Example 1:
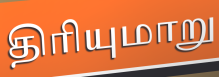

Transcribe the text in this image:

திரியுமாறு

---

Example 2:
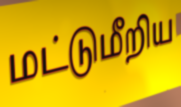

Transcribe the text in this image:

மட்டுமீறிய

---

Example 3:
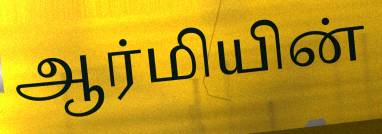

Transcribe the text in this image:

ஆர்மியின்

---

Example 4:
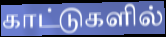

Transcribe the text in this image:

காட்டுகளில்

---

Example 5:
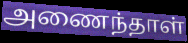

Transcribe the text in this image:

அணைந்தாள்